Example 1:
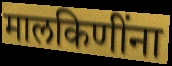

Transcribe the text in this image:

मालकिणींना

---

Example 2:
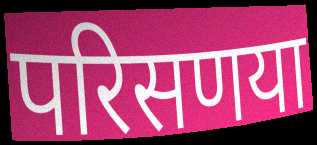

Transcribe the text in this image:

परिसणया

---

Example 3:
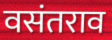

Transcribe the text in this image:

वसंतराव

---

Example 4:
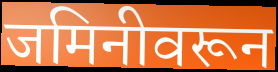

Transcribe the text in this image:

जमिनीवरून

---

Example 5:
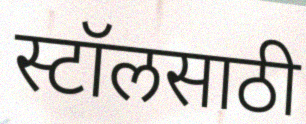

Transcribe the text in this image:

स्टॉलसाठी